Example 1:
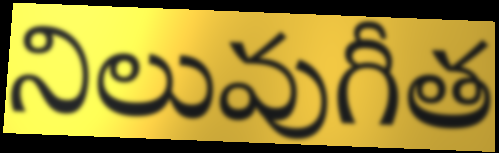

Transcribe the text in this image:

నిలువుగీత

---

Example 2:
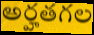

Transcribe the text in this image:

అర్హతగల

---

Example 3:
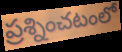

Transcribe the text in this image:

ప్రశ్నించటంలో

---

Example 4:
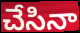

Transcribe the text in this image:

చేసినా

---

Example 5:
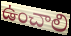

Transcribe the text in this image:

ఉంచాలి